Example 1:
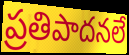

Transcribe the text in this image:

ప్రతిపాదనలే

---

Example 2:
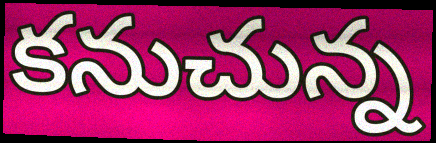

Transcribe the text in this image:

కనుచున్న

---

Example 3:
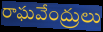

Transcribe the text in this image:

రాఘవేంద్రులు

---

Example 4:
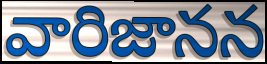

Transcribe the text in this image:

వారిజానన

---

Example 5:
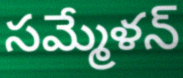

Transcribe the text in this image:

సమ్మేళన్